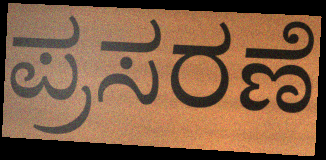
ಪ್ರಸರಣೆ